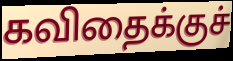
கவிதைக்குச்